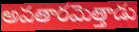
అవతారమెత్తాడు